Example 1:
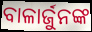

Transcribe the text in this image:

ବାଳାର୍ଜୁନଙ୍କ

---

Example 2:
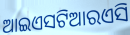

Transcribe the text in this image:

ଆଇଏସଟିଆରଏସି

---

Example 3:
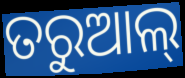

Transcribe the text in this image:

ତରୁଆଲ୍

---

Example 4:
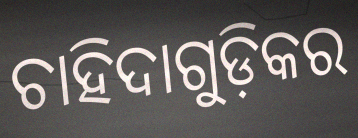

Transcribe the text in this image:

ଚାହିଦାଗୁଡ଼ିକର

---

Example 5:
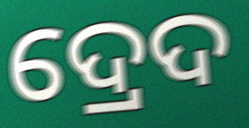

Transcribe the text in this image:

ଦ୍ରେଦ